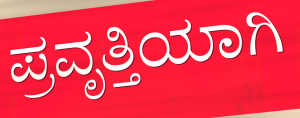
ಪ್ರವೃತ್ತಿಯಾಗಿ